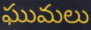
ఘుమలు